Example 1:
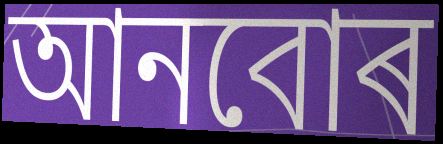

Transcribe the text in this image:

আনবোৰ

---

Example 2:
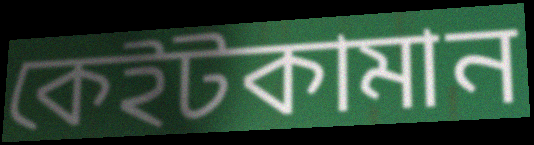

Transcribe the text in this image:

কেইটকামান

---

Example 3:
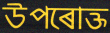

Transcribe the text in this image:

উপৰোক্ত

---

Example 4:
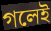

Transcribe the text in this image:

গলেই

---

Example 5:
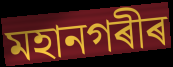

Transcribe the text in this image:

মহানগৰীৰ